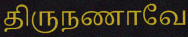
திருநணாவே